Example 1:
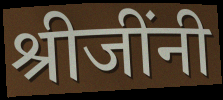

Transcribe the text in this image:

श्रीजींनी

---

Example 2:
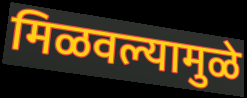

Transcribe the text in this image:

मिळवल्यामुळे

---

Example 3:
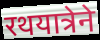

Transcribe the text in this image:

रथयात्रेने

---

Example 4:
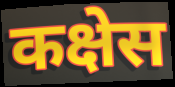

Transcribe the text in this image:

कक्षेस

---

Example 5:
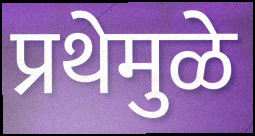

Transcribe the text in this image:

प्रथेमुळे